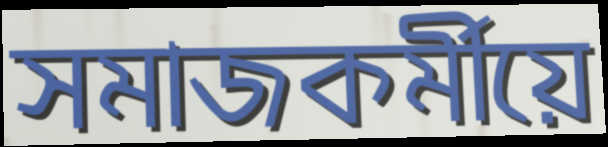
সমাজকৰ্মীয়ে